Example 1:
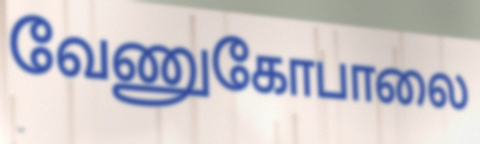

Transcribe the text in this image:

வேணுகோபாலை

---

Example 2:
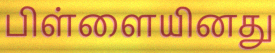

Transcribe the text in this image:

பிள்ளையினது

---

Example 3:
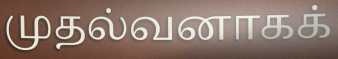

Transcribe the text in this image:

முதல்வனாகக்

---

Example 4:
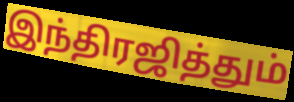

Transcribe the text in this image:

இந்திரஜித்தும்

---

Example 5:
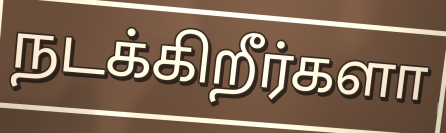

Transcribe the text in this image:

நடக்கிறீர்களா